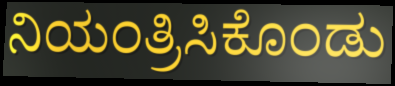
ನಿಯಂತ್ರಿಸಿಕೊಂಡು